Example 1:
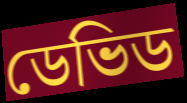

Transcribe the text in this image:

ডেভিড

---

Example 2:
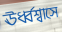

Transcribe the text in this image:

ঊর্ধ্বশ্বাসে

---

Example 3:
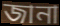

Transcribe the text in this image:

জানা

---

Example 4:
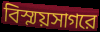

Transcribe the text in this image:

বিস্ময়সাগরে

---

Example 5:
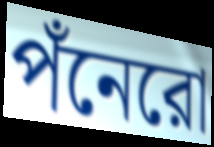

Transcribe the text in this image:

পঁনেরো